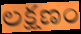
లక్షణం